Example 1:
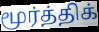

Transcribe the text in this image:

மூர்த்திக்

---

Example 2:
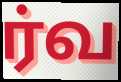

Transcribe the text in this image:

ர்வ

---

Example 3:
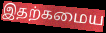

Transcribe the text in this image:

இதற்கமைய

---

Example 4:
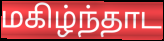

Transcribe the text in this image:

மகிழ்ந்தாட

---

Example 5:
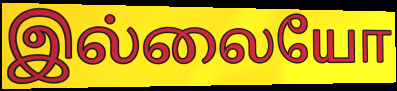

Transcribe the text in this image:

இல்லையோ